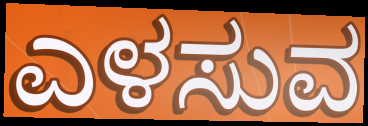
ಎಳಸುವ